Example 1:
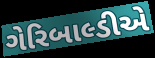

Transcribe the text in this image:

ગેરિબાલ્ડીએ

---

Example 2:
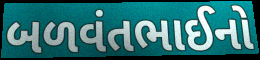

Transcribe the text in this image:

બળવંતભાઈનો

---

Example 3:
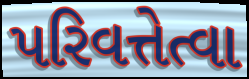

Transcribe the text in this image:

પરિવત્તેત્વા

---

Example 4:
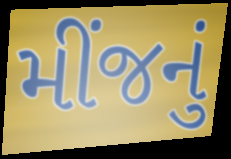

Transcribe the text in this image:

મીંજનું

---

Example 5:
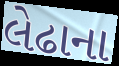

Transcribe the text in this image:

લેઢાના